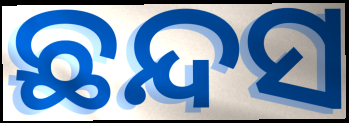
ଛନ୍ଦସ